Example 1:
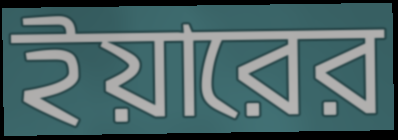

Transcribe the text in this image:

ইয়ারের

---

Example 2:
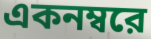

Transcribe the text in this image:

একনম্বরে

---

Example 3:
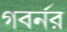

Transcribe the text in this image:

গবর্নর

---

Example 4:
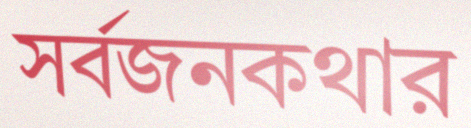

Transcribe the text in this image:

সর্বজনকথার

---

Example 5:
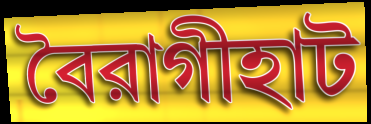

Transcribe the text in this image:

বৈরাগীহাট